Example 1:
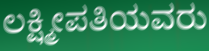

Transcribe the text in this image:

ಲಕ್ಷ್ಮೀಪತಿಯವರು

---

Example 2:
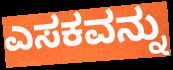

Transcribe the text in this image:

ಎಸಕವನ್ನು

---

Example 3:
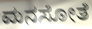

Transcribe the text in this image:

ಮನಸೋತೆ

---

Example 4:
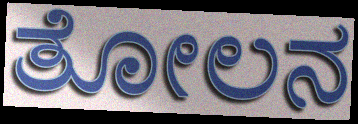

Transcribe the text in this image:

ತೋಲನ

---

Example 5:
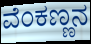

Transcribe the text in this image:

ವೆಂಕಣ್ಣನ